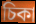
চিকা